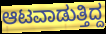
ಆಟವಾಡುತ್ತಿದ್ದ